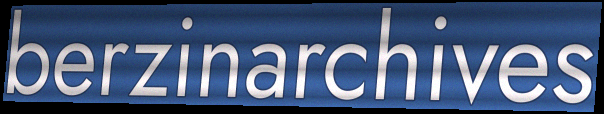
berzinarchives